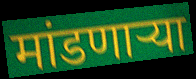
मांडणार्‍या